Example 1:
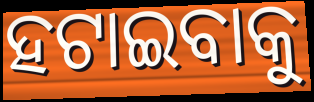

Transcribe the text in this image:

ହଟାଇବାକୁ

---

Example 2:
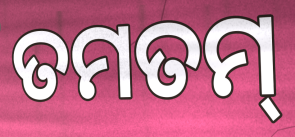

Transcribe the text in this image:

ତମତମ୍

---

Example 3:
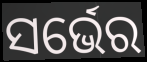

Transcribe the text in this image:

ସର୍ଭେର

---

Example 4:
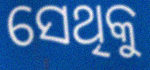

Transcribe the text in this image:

ସେଥିକୁ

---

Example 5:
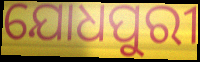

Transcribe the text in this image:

ଯୋଧପୁରୀ